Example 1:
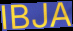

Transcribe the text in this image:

IBJA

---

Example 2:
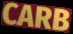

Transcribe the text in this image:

CARB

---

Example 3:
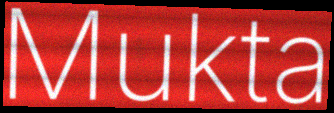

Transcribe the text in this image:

Mukta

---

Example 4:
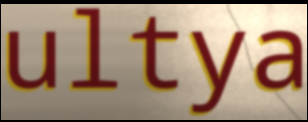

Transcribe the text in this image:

ultya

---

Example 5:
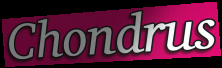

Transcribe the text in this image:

Chondrus